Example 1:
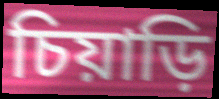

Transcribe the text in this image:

চিয়াড়ি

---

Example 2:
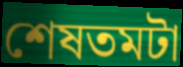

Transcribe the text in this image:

শেষতমটা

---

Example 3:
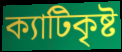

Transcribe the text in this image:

ক্যাটিকৃষ্ট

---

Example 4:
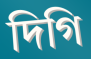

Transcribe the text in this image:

দিগি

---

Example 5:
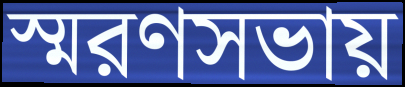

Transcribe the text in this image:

স্মরণসভায়